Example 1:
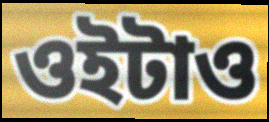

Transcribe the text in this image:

ওইটাও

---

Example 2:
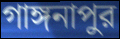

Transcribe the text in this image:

গাঙ্গনাপুর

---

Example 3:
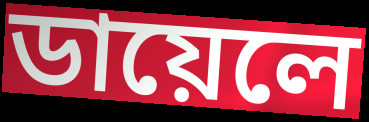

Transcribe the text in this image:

ডায়েলে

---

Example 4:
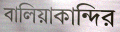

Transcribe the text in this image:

বালিয়াকান্দির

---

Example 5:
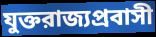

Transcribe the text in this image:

যুক্তরাজ্যপ্রবাসী